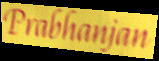
Prabhanjan